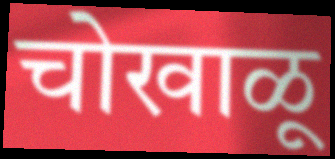
चोखाळू